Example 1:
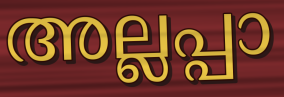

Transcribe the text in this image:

അല്ലപ്പാ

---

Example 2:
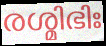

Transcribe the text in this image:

രശ്മിഭിഃ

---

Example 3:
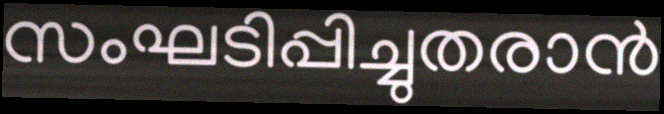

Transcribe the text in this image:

സംഘടിപ്പിച്ചുതരാൻ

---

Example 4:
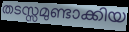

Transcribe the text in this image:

തടസ്സമുണ്ടാക്കിയ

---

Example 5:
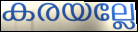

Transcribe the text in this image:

കരയല്ലേ